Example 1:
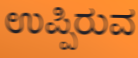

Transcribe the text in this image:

ಉಪ್ಪಿರುವ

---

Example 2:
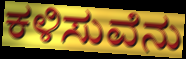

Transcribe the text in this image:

ಕಳಿಸುವೆನು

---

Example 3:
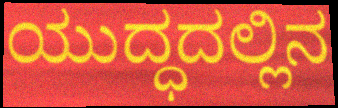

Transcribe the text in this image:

ಯುದ್ಧದಲ್ಲಿನ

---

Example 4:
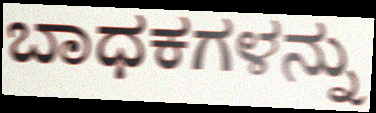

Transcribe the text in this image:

ಬಾಧಕಗಳನ್ನು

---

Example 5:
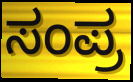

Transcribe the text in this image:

ಸಂಪ್ರ